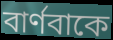
বার্ণবাকে